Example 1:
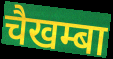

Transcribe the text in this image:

चैखम्बा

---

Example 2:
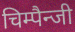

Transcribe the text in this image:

चिम्पैन्जी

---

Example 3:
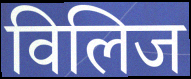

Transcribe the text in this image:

विलिज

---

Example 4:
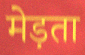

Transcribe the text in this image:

मेड़ता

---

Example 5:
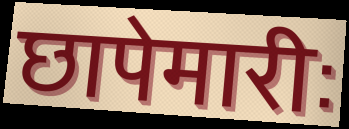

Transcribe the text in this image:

छापेमारीः